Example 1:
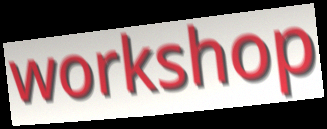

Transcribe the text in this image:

workshop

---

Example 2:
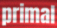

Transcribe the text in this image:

primal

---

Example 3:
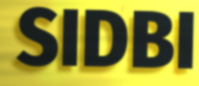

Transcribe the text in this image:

SIDBI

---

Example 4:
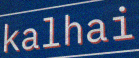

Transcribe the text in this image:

kalhai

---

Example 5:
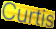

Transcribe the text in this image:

Curtis